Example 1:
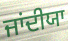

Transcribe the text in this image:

ਜਾਂਦੀਯਾ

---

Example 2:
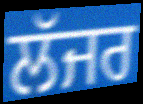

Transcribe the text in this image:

ਲੱਜਰ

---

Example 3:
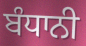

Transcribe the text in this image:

ਬੰਧਾਨੀ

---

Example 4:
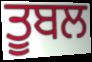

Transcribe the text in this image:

ਤੂਬਲ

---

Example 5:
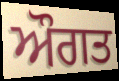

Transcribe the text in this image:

ਔਗਤ